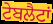
ਟੇਬਲੈਟਾਂ